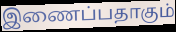
இணைப்பதாகும்